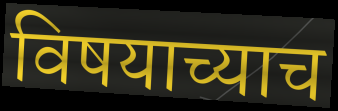
विषयाच्याच